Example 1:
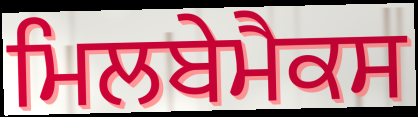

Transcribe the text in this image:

ਮਿਲਬੇਮੈਕਸ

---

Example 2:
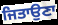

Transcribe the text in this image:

ਜਿਤਾਉਣਾ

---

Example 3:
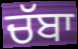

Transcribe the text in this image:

ਚੱਬਾ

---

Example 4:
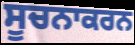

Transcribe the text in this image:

ਸੂਚਨਾਕਰਨ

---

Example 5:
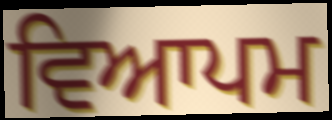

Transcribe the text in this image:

ਵਿਆਪਮ